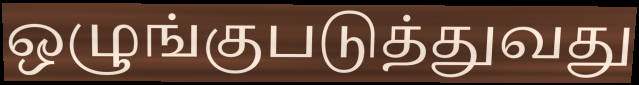
ஒழுங்குபடுத்துவது